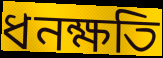
ধনক্ষতি